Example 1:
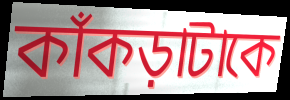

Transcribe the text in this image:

কাঁকড়াটাকে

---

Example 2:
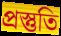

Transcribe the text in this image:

প্রস্তুতি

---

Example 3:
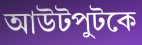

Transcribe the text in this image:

আউটপুটকে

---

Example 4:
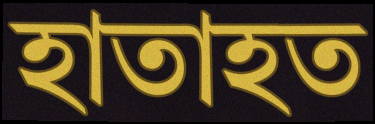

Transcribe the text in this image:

হাতাহত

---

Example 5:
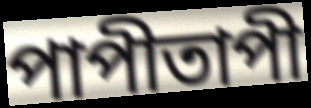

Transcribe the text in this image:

পাপীতাপী